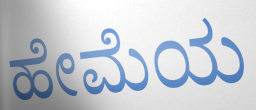
ಹೇಮೆಯ